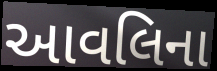
આવલિના